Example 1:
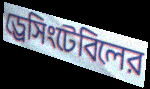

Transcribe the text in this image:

ড্রেসিংটেবিলের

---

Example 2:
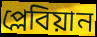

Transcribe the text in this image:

প্লেবিয়ান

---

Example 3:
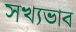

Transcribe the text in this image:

সখ্যভাব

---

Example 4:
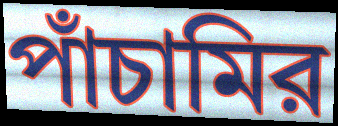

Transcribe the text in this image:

পাঁচামির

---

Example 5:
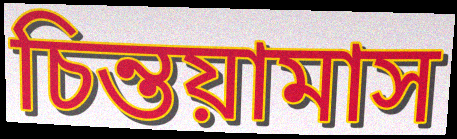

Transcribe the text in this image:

চিন্তয়ামাস